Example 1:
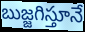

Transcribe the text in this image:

బుజ్జగిస్తూనే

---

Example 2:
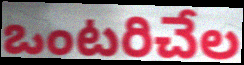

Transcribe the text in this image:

ఒంటరిచేల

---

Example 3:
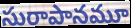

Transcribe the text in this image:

సురాపానమూ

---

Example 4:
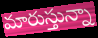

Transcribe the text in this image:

మారుస్తున్నా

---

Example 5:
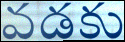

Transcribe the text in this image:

వడకు